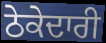
ਠੇਕੇਦਾਰੀ